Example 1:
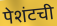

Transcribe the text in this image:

पेशंटची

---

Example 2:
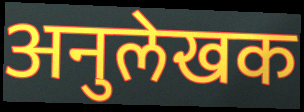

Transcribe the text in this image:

अनुलेखक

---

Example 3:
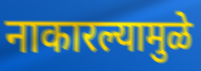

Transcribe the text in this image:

नाकारल्यामुळे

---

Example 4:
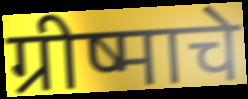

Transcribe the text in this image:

ग्रीष्माचे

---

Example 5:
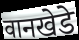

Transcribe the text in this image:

वानखेडे